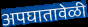
अपघातावेळी